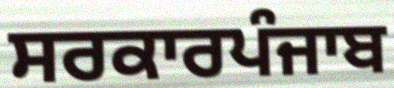
ਸਰਕਾਰਪੰਜਾਬ